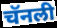
चॅनली